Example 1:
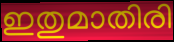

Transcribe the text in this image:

ഇതുമാതിരി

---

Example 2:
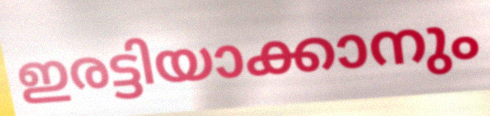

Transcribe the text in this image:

ഇരട്ടിയാക്കാനും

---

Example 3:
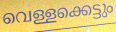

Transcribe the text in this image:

വെള്ളക്കെട്ടും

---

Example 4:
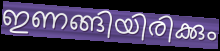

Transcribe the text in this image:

ഇണങ്ങിയിരിക്കും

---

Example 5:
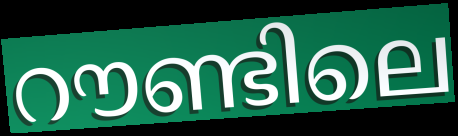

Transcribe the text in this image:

റൗണ്ടിലെ